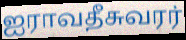
ஐராவதீசுவரர்